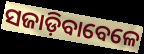
ସଜାଡ଼ିବାବେଳେ